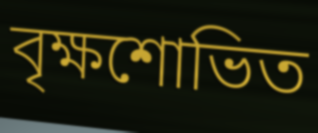
বৃক্ষশোভিত